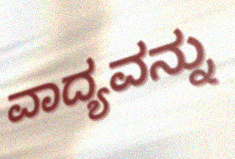
ವಾದ್ಯವನ್ನು